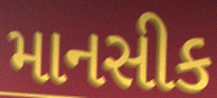
માનસીક